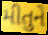
મીતુને